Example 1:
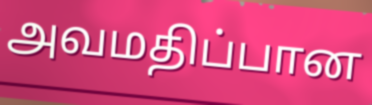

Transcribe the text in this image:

அவமதிப்பான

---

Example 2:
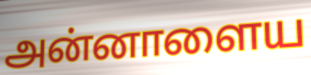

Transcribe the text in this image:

அன்னாளைய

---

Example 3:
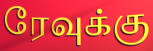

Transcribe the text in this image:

ரேவுக்கு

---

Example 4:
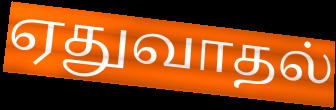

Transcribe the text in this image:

ஏதுவாதல்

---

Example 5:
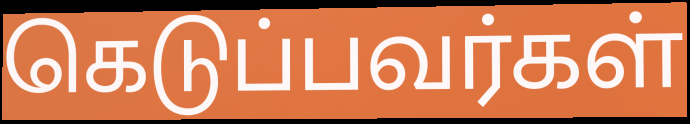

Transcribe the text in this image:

கெடுப்பவர்கள்